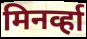
मिनर्व्हा